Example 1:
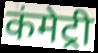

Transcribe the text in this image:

कंमेट्री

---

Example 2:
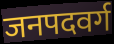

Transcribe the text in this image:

जनपदवर्ग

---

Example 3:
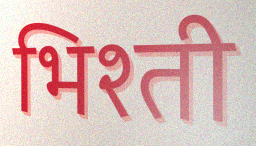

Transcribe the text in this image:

भिश्ती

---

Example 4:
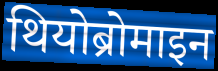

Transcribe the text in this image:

थियोब्रोमाइन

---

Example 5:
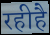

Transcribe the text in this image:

रहीहै